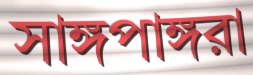
সাঙ্গপাঙ্গরা